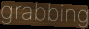
grabbing